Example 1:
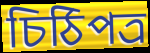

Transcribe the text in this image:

চিঠিপত্র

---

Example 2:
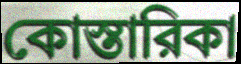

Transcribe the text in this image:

কোস্তারিকা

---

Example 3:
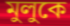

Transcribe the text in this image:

মুলুকে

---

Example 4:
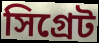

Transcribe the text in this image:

সিগ্রেট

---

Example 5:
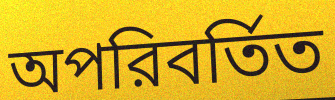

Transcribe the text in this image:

অপরিবর্তিত